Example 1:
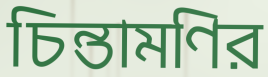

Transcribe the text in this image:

চিন্তামণির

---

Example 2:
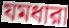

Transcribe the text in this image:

যমধারা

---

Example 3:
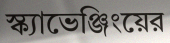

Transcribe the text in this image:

স্ক্যাভেঞ্জিংয়ের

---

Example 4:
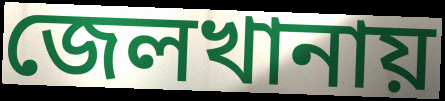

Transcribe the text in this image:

জেলখানায়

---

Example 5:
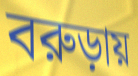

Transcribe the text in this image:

বরুড়ায়